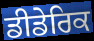
ਡੀਡੇਰਿਕ